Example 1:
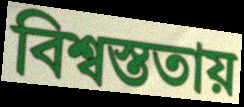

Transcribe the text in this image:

বিশ্বস্ততায়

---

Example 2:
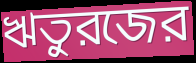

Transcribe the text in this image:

ঋতুরজের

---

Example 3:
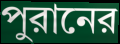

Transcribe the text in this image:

পুরানের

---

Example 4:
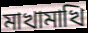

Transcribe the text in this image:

মাখামাখি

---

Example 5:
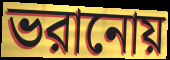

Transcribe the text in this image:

ভরানোয়